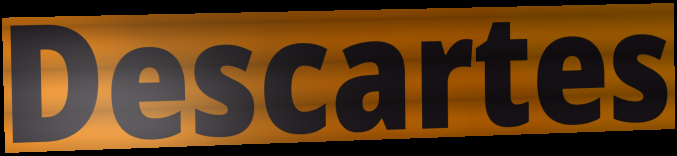
Descartes